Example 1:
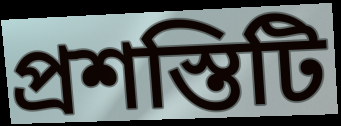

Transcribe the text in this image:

প্রশস্তিটি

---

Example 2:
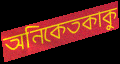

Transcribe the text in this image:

অনিকেতকাকু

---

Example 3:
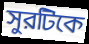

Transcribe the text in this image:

সুরটিকে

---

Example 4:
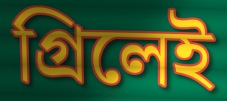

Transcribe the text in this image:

গ্রিলেই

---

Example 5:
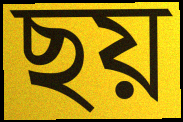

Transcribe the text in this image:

ছয়